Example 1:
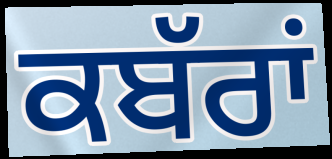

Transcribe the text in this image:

ਕਬੱਰਾਂ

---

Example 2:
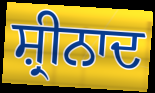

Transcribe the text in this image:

ਸ਼੍ਰੀਨਾਦ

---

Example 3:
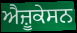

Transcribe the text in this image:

ਐਜ਼ੂਕੇਸਨ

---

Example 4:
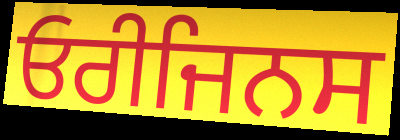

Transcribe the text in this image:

ਓਰੀਜਿਨਸ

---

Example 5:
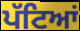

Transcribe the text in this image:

ਪੱਟਿਆਂ